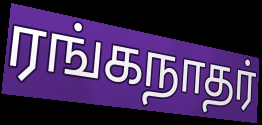
ரங்கநாதர்